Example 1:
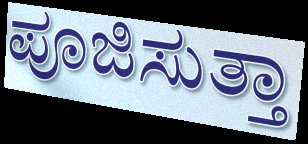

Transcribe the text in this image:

ಪೂಜಿಸುತ್ತಾ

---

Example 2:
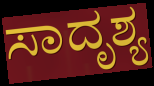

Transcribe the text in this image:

ಸಾದೃಶ್ಯ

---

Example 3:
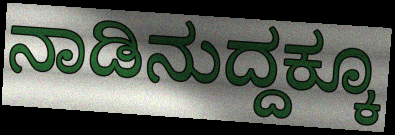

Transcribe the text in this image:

ನಾಡಿನುದ್ದಕ್ಕೂ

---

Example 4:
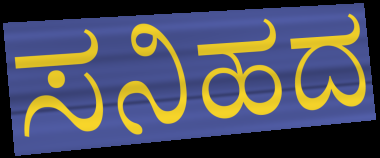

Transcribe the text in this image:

ಸನಿಹದ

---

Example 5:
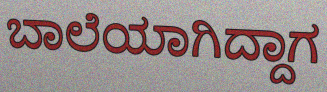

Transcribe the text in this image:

ಬಾಲೆಯಾಗಿದ್ದಾಗ